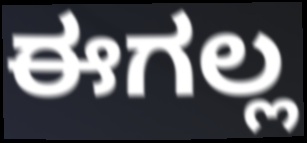
ಈಗಲ್ಲ